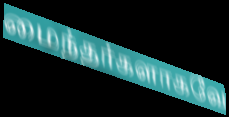
மைந்தர்களாகவே